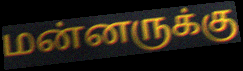
மன்னருக்கு